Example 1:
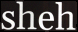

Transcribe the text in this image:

sheh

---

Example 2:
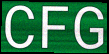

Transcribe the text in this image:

CFG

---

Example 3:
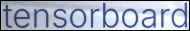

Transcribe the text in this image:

tensorboard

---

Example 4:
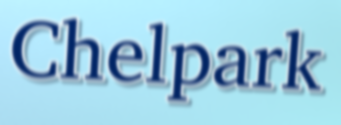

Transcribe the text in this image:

Chelpark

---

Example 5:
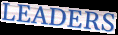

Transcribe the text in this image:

LEADERS